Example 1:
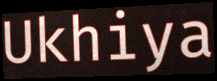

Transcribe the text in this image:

Ukhiya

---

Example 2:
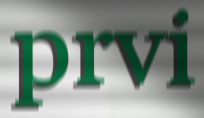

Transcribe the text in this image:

prvi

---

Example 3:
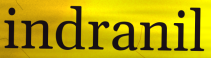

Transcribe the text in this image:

indranil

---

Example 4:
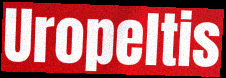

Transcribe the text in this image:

Uropeltis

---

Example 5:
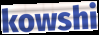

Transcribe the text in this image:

kowshi